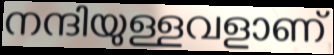
നന്ദിയുള്ളവളാണ്